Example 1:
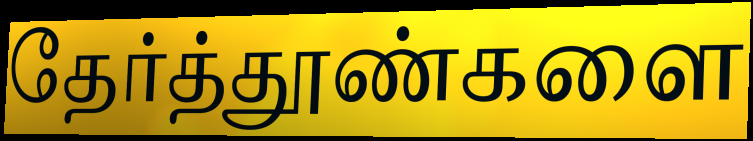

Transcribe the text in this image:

தேர்த்தூண்களை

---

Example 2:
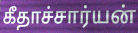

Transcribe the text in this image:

கீதாச்சார்யன்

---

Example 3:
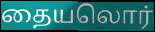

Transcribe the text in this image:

தையலொர்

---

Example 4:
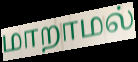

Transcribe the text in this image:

மாறாமல்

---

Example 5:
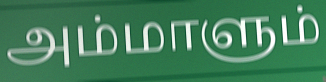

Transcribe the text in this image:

அம்மாளும்